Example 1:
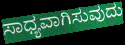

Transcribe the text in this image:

ಸಾಧ್ಯವಾಗಿಸುವುದು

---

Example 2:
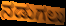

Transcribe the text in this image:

ನಡುಗಲು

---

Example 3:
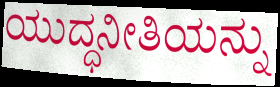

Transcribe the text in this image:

ಯುದ್ಧನೀತಿಯನ್ನು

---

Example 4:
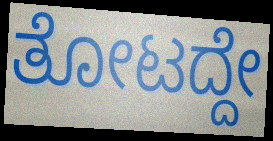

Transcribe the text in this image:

ತೋಟದ್ದೇ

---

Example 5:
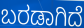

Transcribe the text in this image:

ಬರಡಾಗಿದೆ